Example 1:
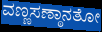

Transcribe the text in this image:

ವಣ್ಣಸಣ್ಠಾನತೋ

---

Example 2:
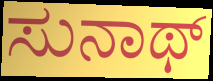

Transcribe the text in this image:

ಸುನಾಥ್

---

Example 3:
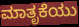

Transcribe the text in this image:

ಮಾತೃಕೆಯು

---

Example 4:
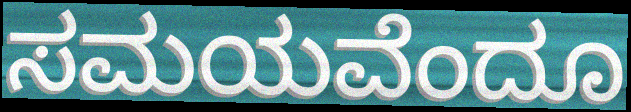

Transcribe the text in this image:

ಸಮಯವೆಂದೂ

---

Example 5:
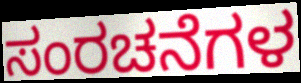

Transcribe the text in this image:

ಸಂರಚನೆಗಳ